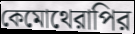
কেমোথেরাপির